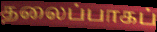
தலைப்பாகப்